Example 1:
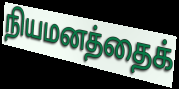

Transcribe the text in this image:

நியமனத்தைக்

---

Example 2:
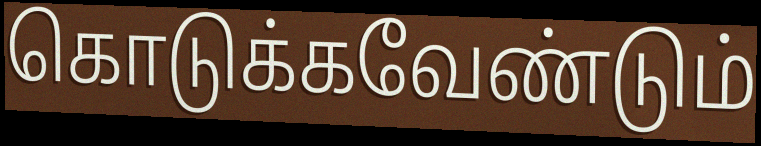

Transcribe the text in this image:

கொடுக்கவேண்டும்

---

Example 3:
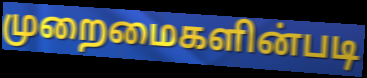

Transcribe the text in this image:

முறைமைகளின்படி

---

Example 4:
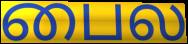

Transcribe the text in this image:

பைல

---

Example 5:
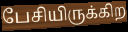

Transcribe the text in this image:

பேசியிருக்கிற